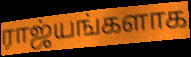
ராஜ்யங்களாக